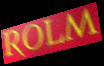
ROLM